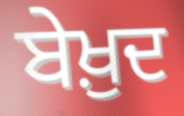
ਬੇਖ਼ੁਦ